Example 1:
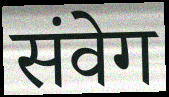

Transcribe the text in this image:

संवेग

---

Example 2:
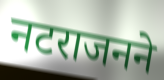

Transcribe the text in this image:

नटराजनने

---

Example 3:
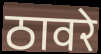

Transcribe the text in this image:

ठावरे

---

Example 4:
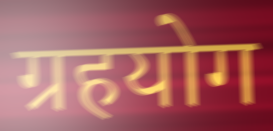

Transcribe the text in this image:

ग्रहयोग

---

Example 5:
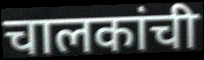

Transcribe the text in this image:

चालकांची